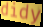
didy